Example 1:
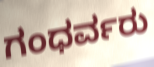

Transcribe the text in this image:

ಗಂಧರ್ವರು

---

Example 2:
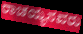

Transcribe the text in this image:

ರಾಚಯ್ಯನವರು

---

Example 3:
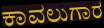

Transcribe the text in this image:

ಕಾವಲುಗಾರ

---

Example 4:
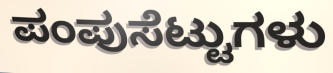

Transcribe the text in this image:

ಪಂಪುಸೆಟ್ಟುಗಳು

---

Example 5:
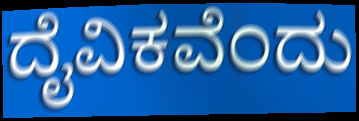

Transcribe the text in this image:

ದೈವಿಕವೆಂದು